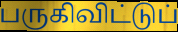
பருகிவிட்டுப்